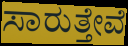
ಸಾರುತ್ತೇವೆ